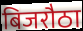
बिजरौठा